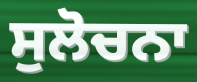
ਸੁਲੋਚਨਾ